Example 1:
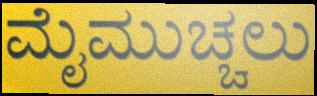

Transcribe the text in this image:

ಮೈಮುಚ್ಚಲು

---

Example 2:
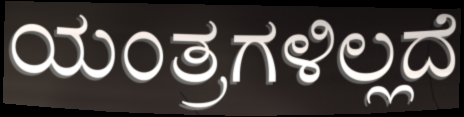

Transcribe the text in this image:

ಯಂತ್ರಗಳಿಲ್ಲದೆ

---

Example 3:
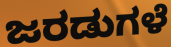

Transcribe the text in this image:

ಜರಡುಗಳೆ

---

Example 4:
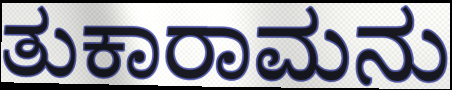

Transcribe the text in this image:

ತುಕಾರಾಮನು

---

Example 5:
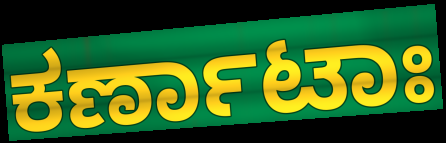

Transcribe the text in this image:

ಕರ್ಣಾಟಾಃ